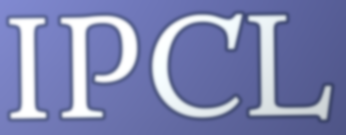
IPCL